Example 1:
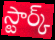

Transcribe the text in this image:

స్టార్క్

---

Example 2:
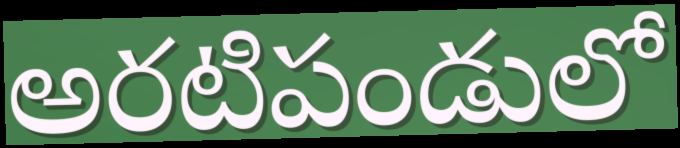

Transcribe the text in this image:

అరటిపండులో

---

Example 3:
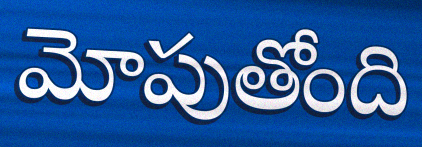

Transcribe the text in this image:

మోపుతోంది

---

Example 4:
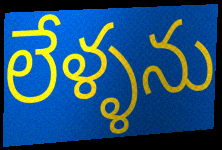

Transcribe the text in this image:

లేళ్ళను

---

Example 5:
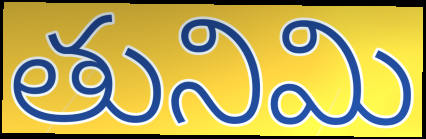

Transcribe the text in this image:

తునిమి